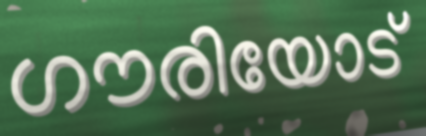
ഗൗരിയോട്